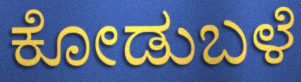
ಕೋಡುಬಳೆ